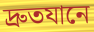
দ্রুতযানে